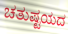
ಚತುಷ್ಟಯದ